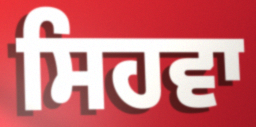
ਸਿਹਵਾ